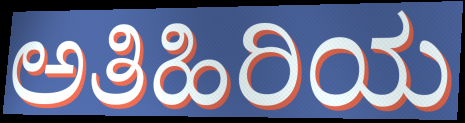
ಅತಿಹಿರಿಯ